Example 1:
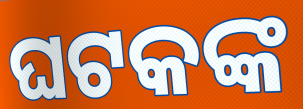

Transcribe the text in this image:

ଘଟକଙ୍କ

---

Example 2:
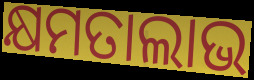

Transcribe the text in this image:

କ୍ଷମତାଲାଭ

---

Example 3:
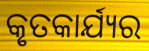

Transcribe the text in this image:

କୃତକାର୍ଯ୍ୟର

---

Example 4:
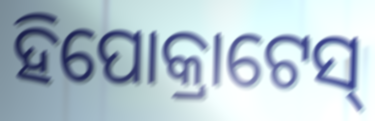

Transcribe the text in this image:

ହିପୋକ୍ରାଟେସ୍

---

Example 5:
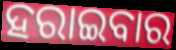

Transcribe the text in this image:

ହରାଇବାର